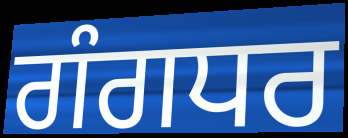
ਗੰਗਧਰ